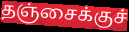
தஞ்சைக்குச்